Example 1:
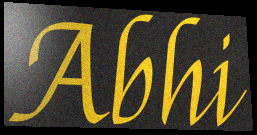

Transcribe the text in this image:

Abhi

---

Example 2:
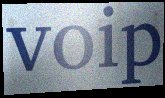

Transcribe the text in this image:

voip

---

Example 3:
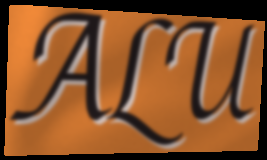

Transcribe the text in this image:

ALU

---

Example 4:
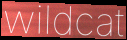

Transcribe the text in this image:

wildcat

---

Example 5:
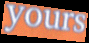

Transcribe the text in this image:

yours